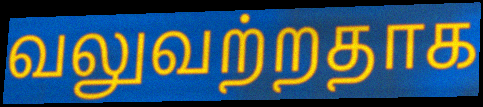
வலுவற்றதாக